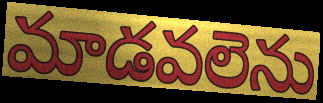
మాడవలెను